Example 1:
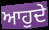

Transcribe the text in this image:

ਆਹੁਦੇ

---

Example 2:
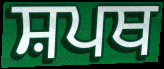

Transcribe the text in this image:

ਸ਼ਪਥ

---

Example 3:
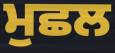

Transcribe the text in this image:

ਮੁਛਲ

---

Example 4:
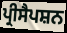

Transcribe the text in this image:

ਪ੍ਰੀਸੈਪਸ਼ਨ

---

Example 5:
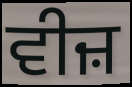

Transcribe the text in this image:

ਵੀਜ਼